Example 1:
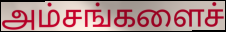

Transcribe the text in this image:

அம்சங்களைச்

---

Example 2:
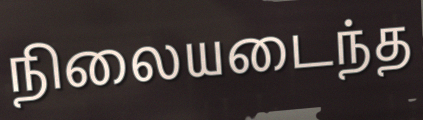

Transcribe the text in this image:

நிலையடைந்த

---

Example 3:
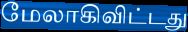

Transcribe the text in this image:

மேலாகிவிட்டது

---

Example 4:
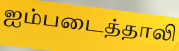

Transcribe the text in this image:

ஐம்படைத்தாலி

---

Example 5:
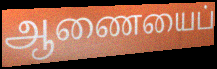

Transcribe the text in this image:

ஆணையைப்